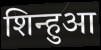
शिन्‍हुआ